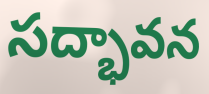
సద్భావన